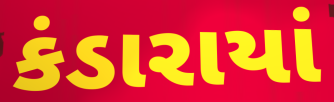
કંડારાયાં